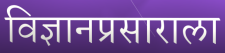
विज्ञानप्रसाराला